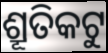
ଶ୍ରୂତିକଟୁ